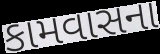
કામવાસના